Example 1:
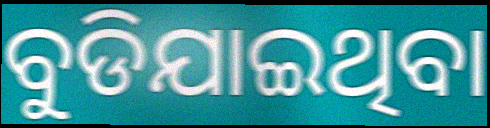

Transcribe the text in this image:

ବୁଡିଯାଇଥିବା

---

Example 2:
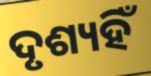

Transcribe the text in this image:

ଦୃଶ୍ୟହିଁ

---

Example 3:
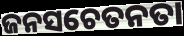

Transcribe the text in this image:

ଜନସଚେତନତା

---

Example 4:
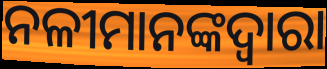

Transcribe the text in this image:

ନଳୀମାନଙ୍କଦ୍ୱାରା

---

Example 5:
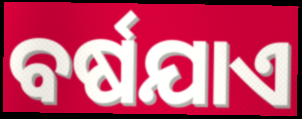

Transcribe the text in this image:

ବର୍ଷଯାଏ